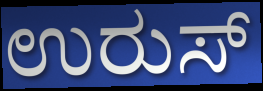
ಉರುಸ್